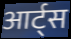
आर्ट्स